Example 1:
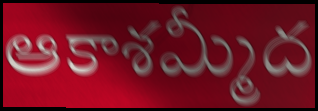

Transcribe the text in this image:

ఆకాశమ్మీద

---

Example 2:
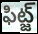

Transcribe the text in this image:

ఫిట్జ్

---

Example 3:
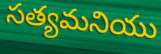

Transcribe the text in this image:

సత్యమనియు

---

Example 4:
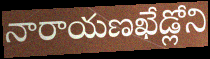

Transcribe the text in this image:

నారాయణఖేడ్లోని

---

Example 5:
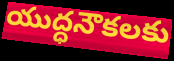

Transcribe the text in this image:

యుద్ధనౌకలకు